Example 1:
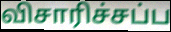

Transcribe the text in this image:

விசாரிச்சப்ப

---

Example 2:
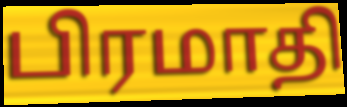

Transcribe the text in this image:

பிரமாதி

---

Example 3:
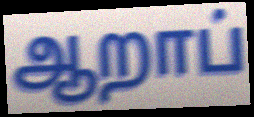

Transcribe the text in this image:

ஆறாப்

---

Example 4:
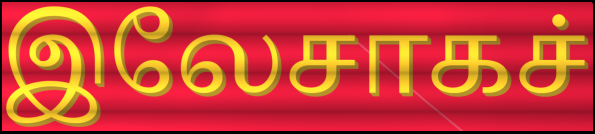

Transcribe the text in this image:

இலேசாகச்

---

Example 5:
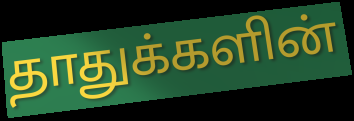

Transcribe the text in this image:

தாதுக்களின்